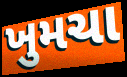
ખુમચા